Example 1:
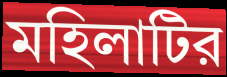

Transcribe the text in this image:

মহিলাটির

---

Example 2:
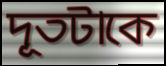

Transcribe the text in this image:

দূতটাকে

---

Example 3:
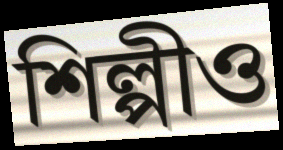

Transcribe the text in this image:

শিল্পীও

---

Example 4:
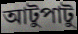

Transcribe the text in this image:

আটুপাটু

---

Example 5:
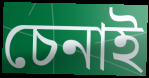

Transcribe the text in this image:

চেনাই